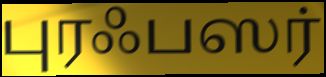
புரஃபஸர்